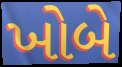
ખોબે